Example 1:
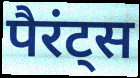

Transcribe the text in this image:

पैरंट्स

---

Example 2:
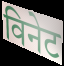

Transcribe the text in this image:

विनेट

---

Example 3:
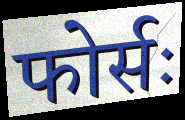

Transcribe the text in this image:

फोर्सः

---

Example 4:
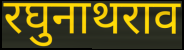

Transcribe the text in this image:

रघुनाथराव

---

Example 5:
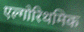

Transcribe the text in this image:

एल्गोरिथमिक